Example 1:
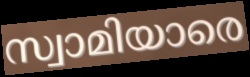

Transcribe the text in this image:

സ്വാമിയാരെ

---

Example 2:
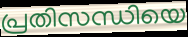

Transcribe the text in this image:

പ്രതിസന്ധിയെ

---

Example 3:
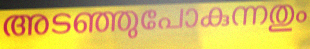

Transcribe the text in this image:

അടഞ്ഞുപോകുന്നതും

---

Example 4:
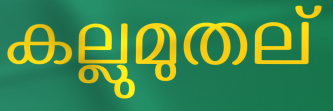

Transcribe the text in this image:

കല്ലുമുതല്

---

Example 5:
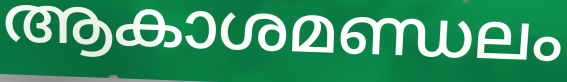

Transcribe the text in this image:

ആകാശമണ്ഡലം